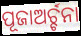
ପୂଜାଅର୍ଚ୍ଚନା